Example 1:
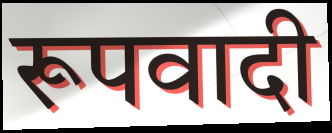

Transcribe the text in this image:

रूपवादी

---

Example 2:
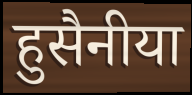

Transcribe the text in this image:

हुसैनीया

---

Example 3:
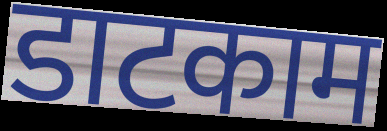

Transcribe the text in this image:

डाटकाम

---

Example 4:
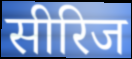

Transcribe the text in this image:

सीरिज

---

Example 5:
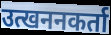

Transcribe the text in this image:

उत्खननकर्ता